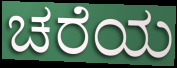
ಚರೆಯ